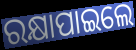
ରକ୍ଷାପାଇଲେ